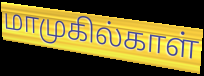
மாமுகில்காள்